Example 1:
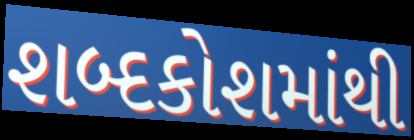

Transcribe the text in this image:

શબ્દકોશમાંથી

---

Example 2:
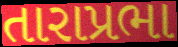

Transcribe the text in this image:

તારાપ્રભા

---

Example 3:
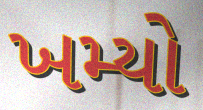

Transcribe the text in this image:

ખમ્યો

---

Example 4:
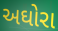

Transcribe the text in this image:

અઘોરા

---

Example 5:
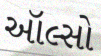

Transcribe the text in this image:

ઑલ્સો